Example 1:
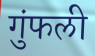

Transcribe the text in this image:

गुंफली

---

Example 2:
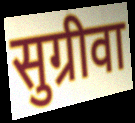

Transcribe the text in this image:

सुग्रीवा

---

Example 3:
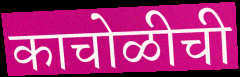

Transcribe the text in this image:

काचोळीची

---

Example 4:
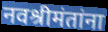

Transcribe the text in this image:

नवश्रीमंतांना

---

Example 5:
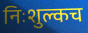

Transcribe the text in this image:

निःशुल्कच